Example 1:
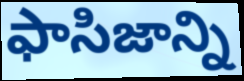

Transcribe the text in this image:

ఫాసిజాన్ని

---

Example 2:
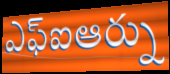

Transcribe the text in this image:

ఎఫ్ఐఆర్ను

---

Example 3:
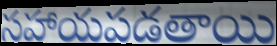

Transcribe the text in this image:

సహాయపడతాయి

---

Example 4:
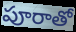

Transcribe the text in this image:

పూరాతో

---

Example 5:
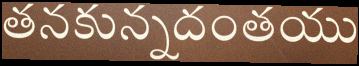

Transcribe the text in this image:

తనకున్నదంతయు